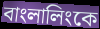
বাংলালিংকে